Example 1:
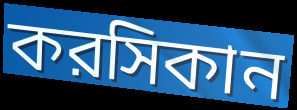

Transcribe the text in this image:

করসিকান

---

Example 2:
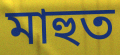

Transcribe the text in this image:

মাহুত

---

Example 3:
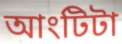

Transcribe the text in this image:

আংটিটা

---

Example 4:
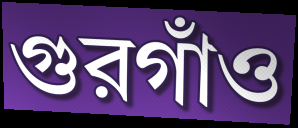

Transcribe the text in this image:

গুরগাঁও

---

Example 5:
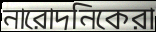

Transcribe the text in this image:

নারোদনিকেরা